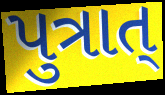
પુત્રાત્